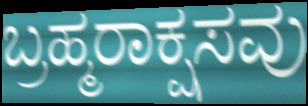
ಬ್ರಹ್ಮರಾಕ್ಷಸವು